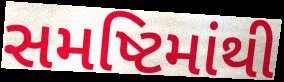
સમષ્ટિમાંથી